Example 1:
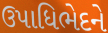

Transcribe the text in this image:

ઉપાધિભેદને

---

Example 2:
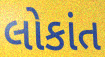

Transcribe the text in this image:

લોકાંત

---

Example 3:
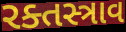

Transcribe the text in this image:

રક્તસ્ત્રાવ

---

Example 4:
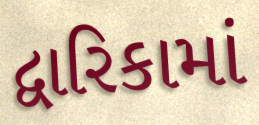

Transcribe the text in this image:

દ્વારિકામાં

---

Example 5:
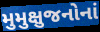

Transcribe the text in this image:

મુમુક્ષુજનોનાં